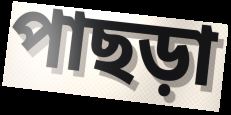
পাছড়া